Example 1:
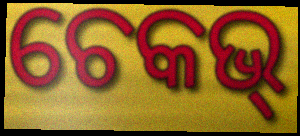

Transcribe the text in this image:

ଚେକଭ୍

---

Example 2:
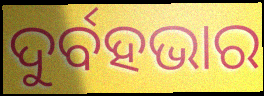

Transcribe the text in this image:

ଦୁର୍ବହଭାର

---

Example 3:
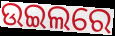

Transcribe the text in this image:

ଉଇଲରେ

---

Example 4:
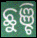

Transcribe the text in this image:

ଛୁଞ୍ଚି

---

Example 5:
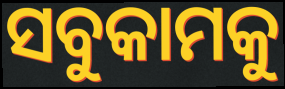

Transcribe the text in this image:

ସବୁକାମକୁ